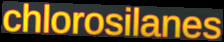
chlorosilanes